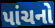
પાંચનો